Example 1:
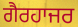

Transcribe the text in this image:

ਗੈਰਹਾਜਰ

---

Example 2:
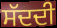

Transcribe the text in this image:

ਸੱਦਦੀ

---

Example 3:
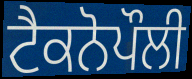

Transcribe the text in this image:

ਟੈਕਨੋਪੌਲੀ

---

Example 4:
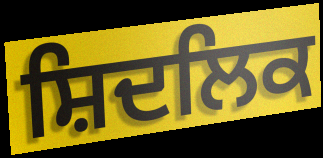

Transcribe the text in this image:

ਸ਼ਿਦਲਿਕ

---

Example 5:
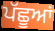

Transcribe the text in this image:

ਪੱਛੂਆਂ